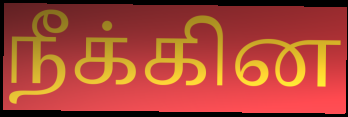
நீக்கின